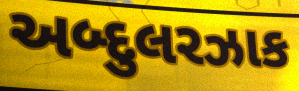
અબ્દુલરઝાક